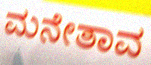
ಮನೇತಾವ